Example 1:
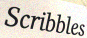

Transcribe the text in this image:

Scribbles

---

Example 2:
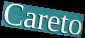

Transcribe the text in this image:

Careto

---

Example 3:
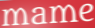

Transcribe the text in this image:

mame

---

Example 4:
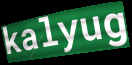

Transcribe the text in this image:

kalyug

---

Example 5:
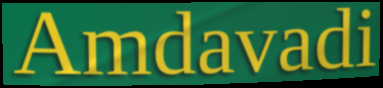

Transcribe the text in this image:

Amdavadi